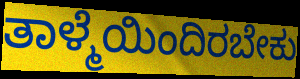
ತಾಳ್ಮೆಯಿಂದಿರಬೇಕು